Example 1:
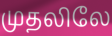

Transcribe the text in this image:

முதலிலே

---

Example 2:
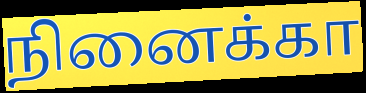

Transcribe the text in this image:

நினைக்கா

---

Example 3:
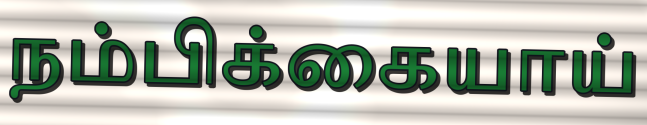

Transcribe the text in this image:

நம்பிக்கையாய்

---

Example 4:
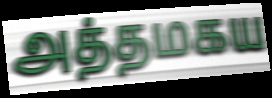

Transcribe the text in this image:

அத்தமகய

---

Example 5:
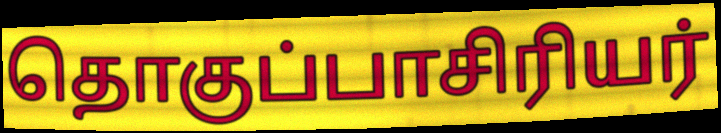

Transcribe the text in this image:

தொகுப்பாசிரியர்